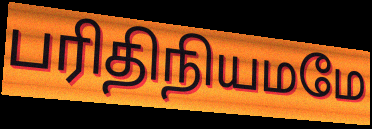
பரிதிநியமமே